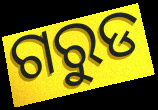
ଗରୁଡ